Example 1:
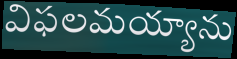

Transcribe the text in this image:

విఫలమయ్యాను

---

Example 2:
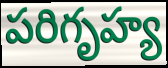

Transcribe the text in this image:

పరిగృహ్య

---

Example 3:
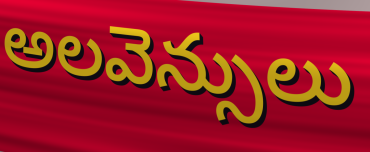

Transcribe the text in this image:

అలవెన్సులు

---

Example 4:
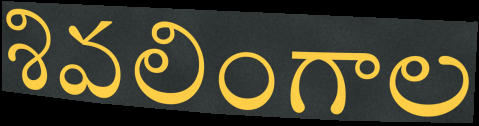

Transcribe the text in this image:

శివలింగాల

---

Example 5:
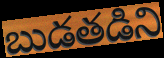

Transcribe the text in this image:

బుడతడిని